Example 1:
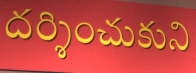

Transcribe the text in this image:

దర్శించుకుని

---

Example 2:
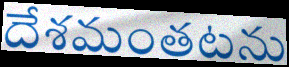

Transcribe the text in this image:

దేశమంతటను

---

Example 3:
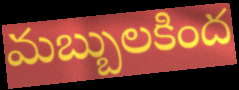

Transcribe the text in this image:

మబ్బులకింద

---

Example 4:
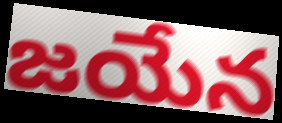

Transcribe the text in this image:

జయేన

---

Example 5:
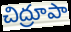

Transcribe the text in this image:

చిద్రూపా